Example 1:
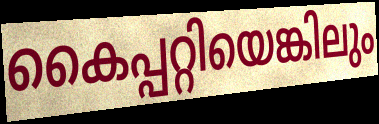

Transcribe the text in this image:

കൈപ്പറ്റിയെങ്കിലും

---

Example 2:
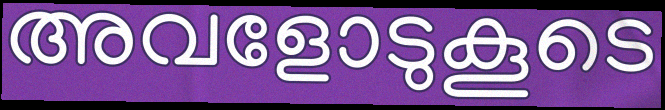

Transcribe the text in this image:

അവളോടുകൂടെ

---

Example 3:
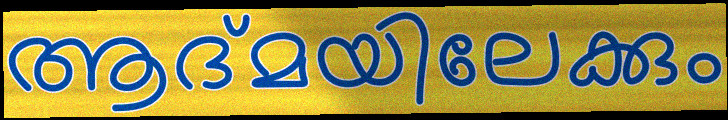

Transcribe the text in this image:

ആദ്മയിലേക്കും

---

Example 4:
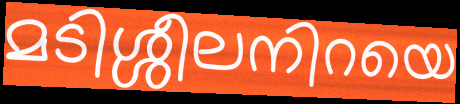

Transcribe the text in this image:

മടിശ്ശീലനിറയെ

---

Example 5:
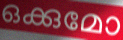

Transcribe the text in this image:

ഒക്കുമോ